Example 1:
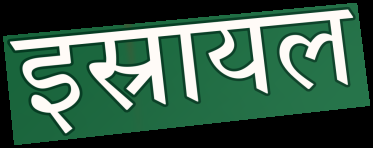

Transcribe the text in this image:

इस्रायल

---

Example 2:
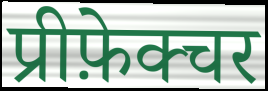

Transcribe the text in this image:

प्रीफ़ेक्चर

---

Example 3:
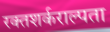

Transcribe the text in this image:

रक्तशर्कराल्पता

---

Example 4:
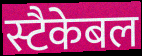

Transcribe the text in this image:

स्टैकेबल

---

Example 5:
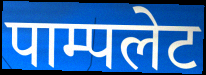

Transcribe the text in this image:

पाम्पलेट